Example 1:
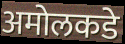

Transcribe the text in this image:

अमोलकडे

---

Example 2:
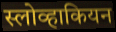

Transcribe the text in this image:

स्लोव्हाकियन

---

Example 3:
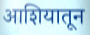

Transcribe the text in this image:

आशियातून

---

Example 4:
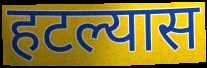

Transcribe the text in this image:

हटल्यास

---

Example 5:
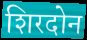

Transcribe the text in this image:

शिरदोन